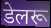
डेलरू